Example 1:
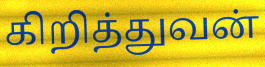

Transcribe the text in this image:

கிறித்துவன்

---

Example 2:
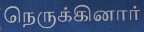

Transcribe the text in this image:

நெருக்கினார்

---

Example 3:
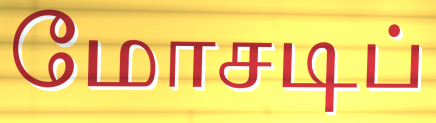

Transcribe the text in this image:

மோசடிப்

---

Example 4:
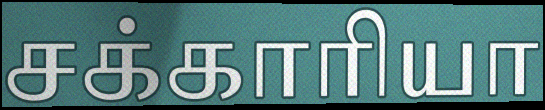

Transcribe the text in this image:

சக்காரியா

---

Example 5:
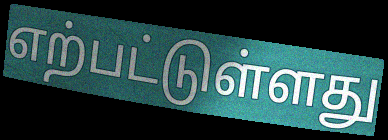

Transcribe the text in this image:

எற்பட்டுள்ளது